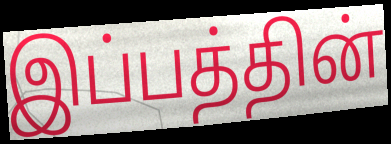
இப்பத்தின்